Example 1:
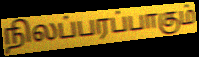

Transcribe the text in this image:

நிலப்பரப்பாகும்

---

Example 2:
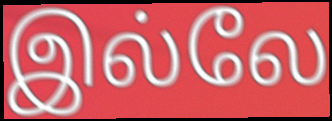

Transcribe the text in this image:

இல்லே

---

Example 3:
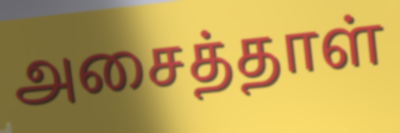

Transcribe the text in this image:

அசைத்தாள்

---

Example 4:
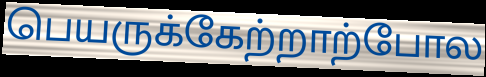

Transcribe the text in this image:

பெயருக்கேற்றாற்போல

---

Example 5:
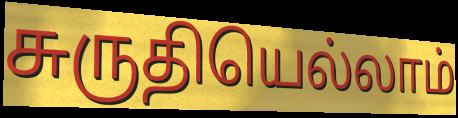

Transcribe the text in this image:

சுருதியெல்லாம்